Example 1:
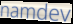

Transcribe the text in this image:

namdev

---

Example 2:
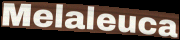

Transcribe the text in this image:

Melaleuca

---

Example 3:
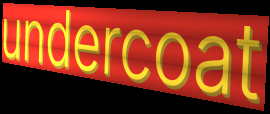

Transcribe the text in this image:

undercoat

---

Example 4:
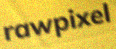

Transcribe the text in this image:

rawpixel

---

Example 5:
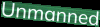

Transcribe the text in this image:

Unmanned